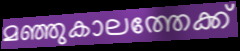
മഞ്ഞുകാലത്തേക്ക്